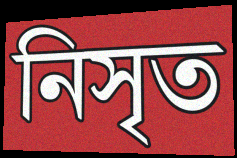
নিসৃত